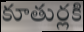
కూతుర్లకి